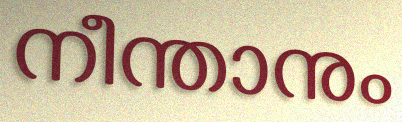
നീന്താനും